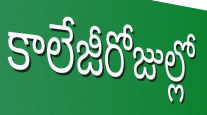
కాలేజీరోజుల్లో